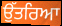
ਉੱਤਰਿਆ